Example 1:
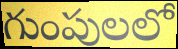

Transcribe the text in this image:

గుంపులలో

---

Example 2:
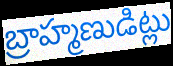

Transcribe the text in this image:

బ్రాహ్మణుడిట్లు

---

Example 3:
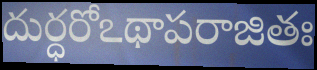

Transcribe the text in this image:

దుర్ధరోఽథాపరాజితః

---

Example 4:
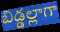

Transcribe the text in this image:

బిడ్డల్లాగా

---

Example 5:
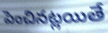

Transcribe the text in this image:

పెంచినట్లయితే